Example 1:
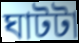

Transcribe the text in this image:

ঘাটটা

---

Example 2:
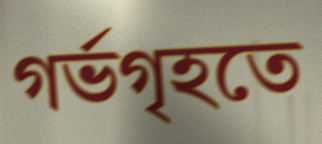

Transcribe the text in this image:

গর্ভগৃহতে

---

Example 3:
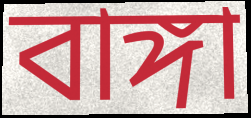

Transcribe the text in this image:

বাঙ্গা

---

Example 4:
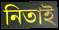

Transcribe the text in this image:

নিতাই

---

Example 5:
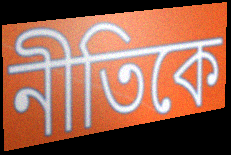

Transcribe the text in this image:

নীতিকে